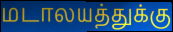
மடாலயத்துக்கு